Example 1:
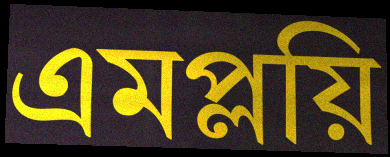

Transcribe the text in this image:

এমপ্লয়ি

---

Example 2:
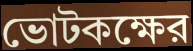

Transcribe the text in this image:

ভোটকক্ষের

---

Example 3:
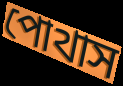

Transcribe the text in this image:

পোথাস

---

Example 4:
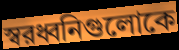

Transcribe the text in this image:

স্বরধ্বনিগুলোকে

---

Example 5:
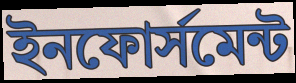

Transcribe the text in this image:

ইনফোর্সমেন্ট